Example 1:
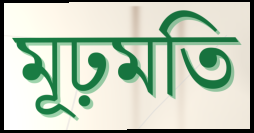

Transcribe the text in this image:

মূঢ়মতি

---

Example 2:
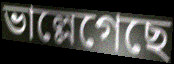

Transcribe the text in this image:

ভাল্লেগেছে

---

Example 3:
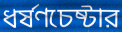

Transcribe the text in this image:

ধর্ষণচেষ্টার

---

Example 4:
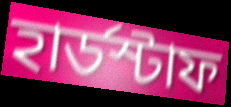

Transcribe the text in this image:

হার্ডস্টাফ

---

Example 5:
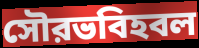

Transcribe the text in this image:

সৌরভবিহবল